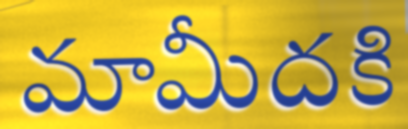
మామీదకి